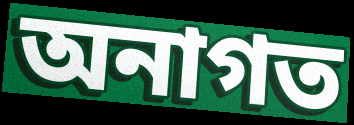
অনাগত